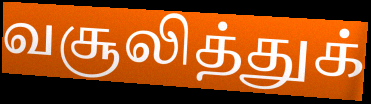
வசூலித்துக்